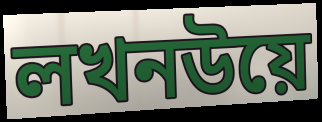
লখনউয়ে